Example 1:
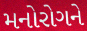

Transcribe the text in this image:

મનોરોગને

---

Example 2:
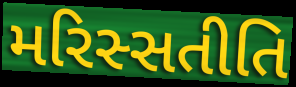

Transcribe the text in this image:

મરિસ્સતીતિ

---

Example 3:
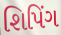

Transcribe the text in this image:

શિપિંગ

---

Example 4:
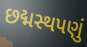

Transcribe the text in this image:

છદ્મસ્થપણું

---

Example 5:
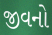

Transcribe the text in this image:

જીવનો